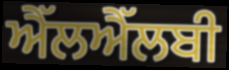
ਐੱਲਐੱਲਬੀ